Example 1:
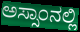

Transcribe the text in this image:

ಅಸ್ಸಾಂನಲ್ಲಿ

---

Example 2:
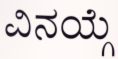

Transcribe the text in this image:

ವಿನಯ್ಗೆ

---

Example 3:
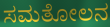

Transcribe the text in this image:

ಸಮತೋಲನ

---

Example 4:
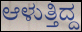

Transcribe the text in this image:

ಆಳುತ್ತಿದ್ದ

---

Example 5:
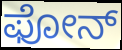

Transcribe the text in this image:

ಫೋನ್